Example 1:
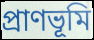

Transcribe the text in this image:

প্রাণভূমি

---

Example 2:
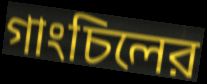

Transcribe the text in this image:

গাংচিলের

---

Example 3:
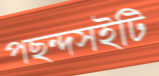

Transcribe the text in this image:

পছন্দসইটি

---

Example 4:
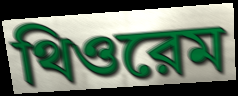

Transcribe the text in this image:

থিওরেম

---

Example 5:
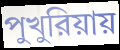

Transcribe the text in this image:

পুখুরিয়ায়